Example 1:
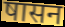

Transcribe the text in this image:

षासन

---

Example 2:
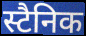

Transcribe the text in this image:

स्टैनिक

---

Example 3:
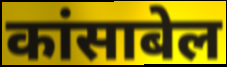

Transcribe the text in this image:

कांसाबेल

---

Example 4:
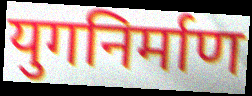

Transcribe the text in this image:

युगनिर्माण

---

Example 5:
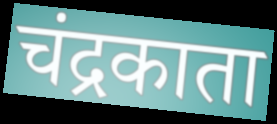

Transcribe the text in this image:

चंद्रकाता